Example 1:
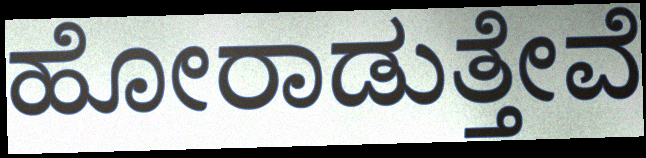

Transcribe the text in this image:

ಹೋರಾಡುತ್ತೇವೆ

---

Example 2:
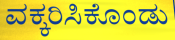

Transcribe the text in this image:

ವಕ್ಕರಿಸಿಕೊಂಡು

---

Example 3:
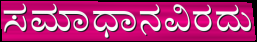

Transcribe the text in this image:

ಸಮಾಧಾನವಿರದು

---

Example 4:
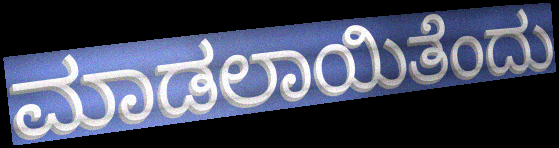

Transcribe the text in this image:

ಮಾಡಲಾಯಿತೆಂದು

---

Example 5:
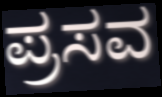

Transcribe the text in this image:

ಪ್ರಸವ